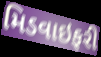
મિડવાઇફરી